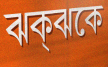
ঝক্ঝকে